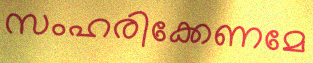
സംഹരിക്കേണമേ